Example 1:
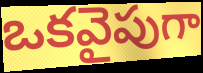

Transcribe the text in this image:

ఒకవైపుగా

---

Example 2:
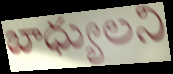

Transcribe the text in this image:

బాధ్యులని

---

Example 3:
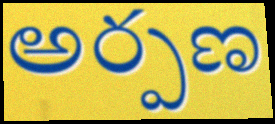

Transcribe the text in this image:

అర్పణ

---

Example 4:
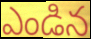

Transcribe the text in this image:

ఎండిన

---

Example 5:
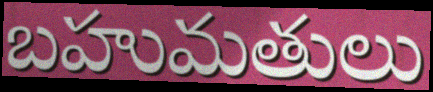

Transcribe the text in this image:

బహుమతులు